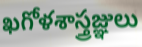
ఖగోళశాస్త్రజ్ఞులు